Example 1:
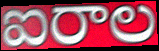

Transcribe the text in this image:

ఐరాల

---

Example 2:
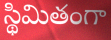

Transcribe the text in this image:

స్థిమితంగా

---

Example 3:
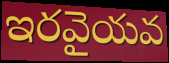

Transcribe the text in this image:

ఇరవైయవ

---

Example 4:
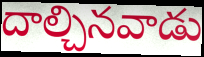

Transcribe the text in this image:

దాల్చినవాడు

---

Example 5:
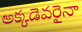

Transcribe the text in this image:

అక్కడెవరైనా